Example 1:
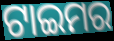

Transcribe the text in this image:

ଟାଇମର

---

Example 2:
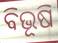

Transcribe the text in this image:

ବିଭୂଷି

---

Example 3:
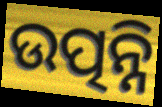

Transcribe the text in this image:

ଉତ୍ପନ୍ନି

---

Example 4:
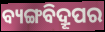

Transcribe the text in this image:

ବ୍ୟଙ୍ଗବିଦ୍ରୂପର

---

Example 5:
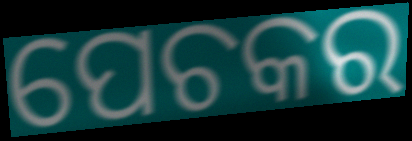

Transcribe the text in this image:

ପେଚକର